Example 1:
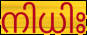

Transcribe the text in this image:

നിധിഃ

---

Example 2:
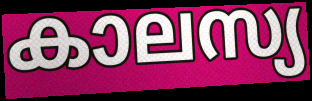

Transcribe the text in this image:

കാലസ്യ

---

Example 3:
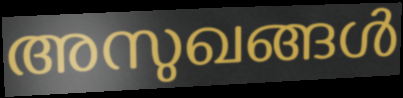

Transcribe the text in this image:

അസുഖങ്ങൾ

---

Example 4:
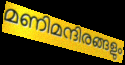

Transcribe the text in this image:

മണിമന്ദിരങ്ങളും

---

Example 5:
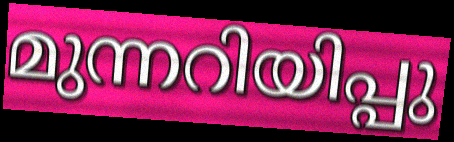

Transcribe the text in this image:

മുന്നറിയിപ്പു